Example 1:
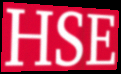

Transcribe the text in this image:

HSE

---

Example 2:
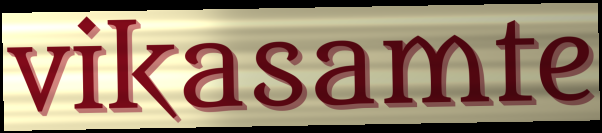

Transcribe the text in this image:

vikasamte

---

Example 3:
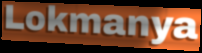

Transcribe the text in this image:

Lokmanya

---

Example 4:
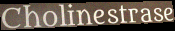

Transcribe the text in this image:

Cholinestrase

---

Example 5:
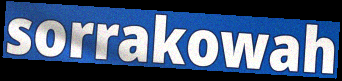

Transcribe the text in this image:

sorrakowah